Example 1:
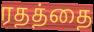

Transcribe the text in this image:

ரதத்தை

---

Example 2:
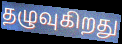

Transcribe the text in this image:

தழுவுகிறது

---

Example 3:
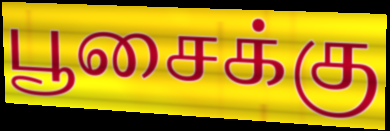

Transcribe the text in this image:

பூசைக்கு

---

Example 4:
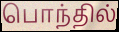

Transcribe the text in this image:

பொந்தில்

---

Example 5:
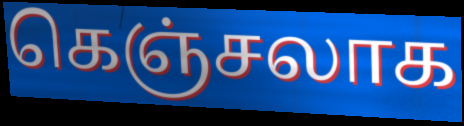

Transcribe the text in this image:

கெஞ்சலாக